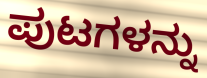
ಪುಟಗಳನ್ನು